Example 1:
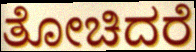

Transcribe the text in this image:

ತೋಚಿದರೆ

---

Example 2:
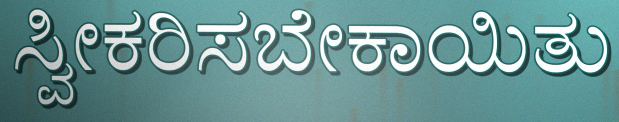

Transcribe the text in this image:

ಸ್ವೀಕರಿಸಬೇಕಾಯಿತು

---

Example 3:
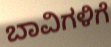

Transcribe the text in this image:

ಬಾವಿಗಳಿಗೆ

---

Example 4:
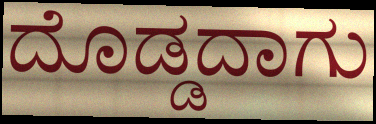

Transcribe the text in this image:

ದೊಡ್ಡದಾಗು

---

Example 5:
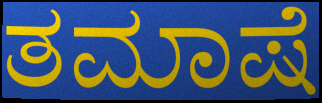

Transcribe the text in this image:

ತಮಾಷೆ